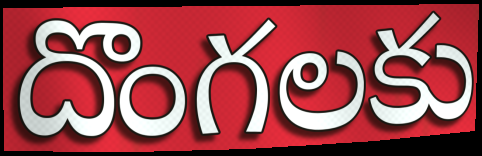
దొంగలకు